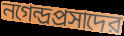
নগেন্দ্রপ্রসাদের